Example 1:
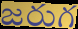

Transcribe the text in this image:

జరుగ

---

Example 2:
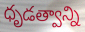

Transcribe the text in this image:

ధృడత్వాన్ని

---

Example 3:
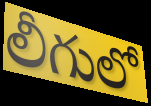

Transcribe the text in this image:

లీగులో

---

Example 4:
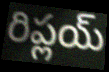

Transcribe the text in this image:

రిప్లయ్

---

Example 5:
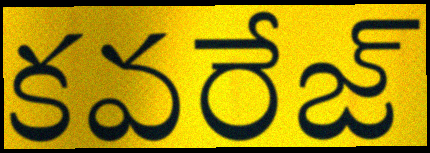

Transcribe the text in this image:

కవరేజ్